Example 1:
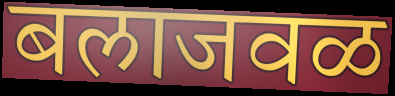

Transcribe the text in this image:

बलाजवळ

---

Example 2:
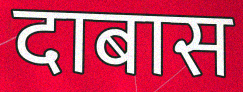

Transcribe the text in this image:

दाबास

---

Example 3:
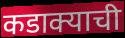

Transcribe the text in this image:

कडाक्याची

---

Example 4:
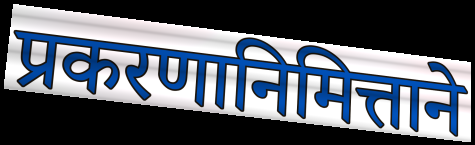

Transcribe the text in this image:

प्रकरणानिमित्ताने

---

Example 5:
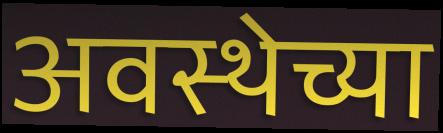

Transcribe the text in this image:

अवस्थेच्या